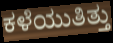
ಕಳೆಯುತಿತ್ತು